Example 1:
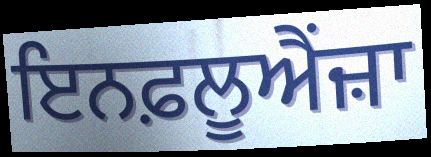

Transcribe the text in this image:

ਇਨਫ਼ਲੂਐਂਜ਼ਾ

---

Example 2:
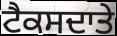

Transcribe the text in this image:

ਟੈਕਸਦਾਤੇ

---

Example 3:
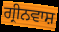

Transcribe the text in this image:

ਗ੍ਰੀਨਵਾਸ਼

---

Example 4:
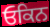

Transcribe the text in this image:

ਓਕਿਨ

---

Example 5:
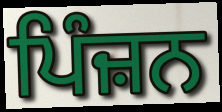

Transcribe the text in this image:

ਪਿੰਜ਼ਨ